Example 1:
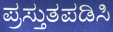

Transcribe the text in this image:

ಪ್ರಸ್ತುತಪಡಿಸಿ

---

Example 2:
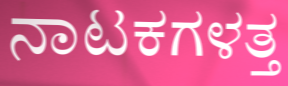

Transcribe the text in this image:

ನಾಟಕಗಳತ್ತ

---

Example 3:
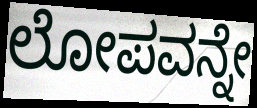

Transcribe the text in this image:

ಲೋಪವನ್ನೇ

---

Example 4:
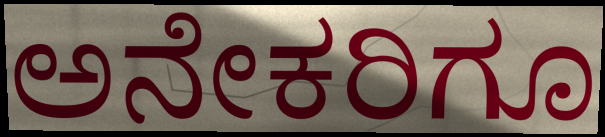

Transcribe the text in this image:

ಅನೇಕರಿಗೂ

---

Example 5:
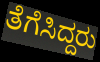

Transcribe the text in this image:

ತೆಗೆಸಿದ್ದರು